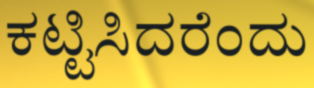
ಕಟ್ಟಿಸಿದರೆಂದು